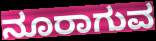
ನೂರಾಗುವ